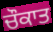
ਚੌਕਾਤ